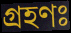
গ্রহণঃ